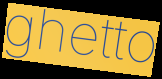
ghetto